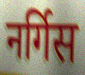
नर्गिस